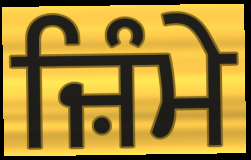
ਜ਼ਿੰਮੇ